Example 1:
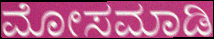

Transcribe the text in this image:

ಮೋಸಮಾಡಿ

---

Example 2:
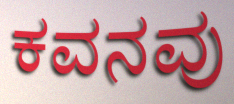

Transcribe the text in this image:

ಕವನವು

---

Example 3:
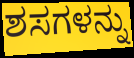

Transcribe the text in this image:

ಶಸಗಳನ್ನು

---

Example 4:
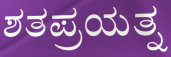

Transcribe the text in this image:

ಶತಪ್ರಯತ್ನ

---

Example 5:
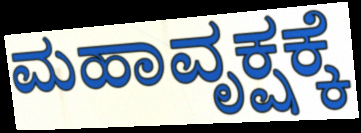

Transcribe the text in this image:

ಮಹಾವೃಕ್ಷಕ್ಕೆ